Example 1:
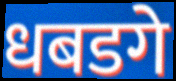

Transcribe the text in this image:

धबडगे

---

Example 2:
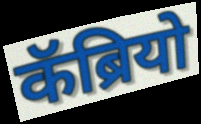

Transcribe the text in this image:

कॅब्रियो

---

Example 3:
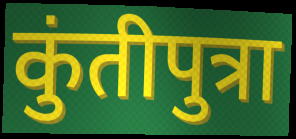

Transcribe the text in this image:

कुंतीपुत्रा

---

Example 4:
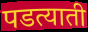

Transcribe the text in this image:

पडत्याती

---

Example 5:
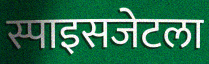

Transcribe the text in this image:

स्पाइसजेटला